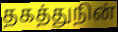
தகத்துநின்